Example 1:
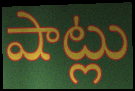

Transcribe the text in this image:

షాట్లు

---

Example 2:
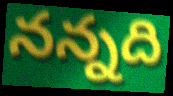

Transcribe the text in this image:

నన్నది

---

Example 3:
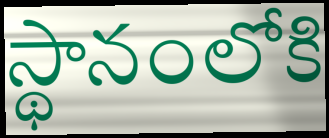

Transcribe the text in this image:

స్థానంలోకి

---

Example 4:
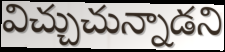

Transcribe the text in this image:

విచ్చుచున్నాడని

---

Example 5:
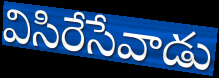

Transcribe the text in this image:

విసిరేసేవాడు